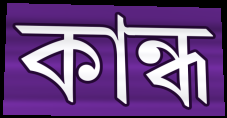
কান্ধ